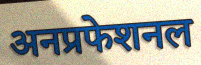
अनप्रफेशनल